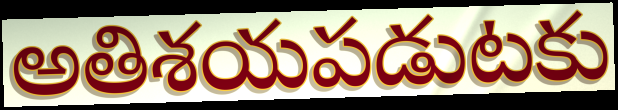
అతిశయపడుటకు